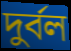
দুর্বল